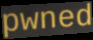
pwned